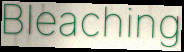
Bleaching